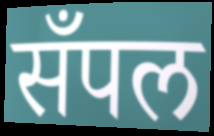
सँपल